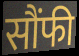
सौंफी